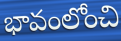
భావంలోంచి